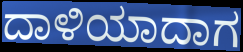
ದಾಳಿಯಾದಾಗ